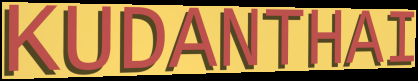
KUDANTHAI